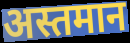
अस्तमान